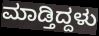
ಮಾಡ್ತಿದ್ದಳು